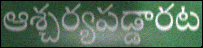
ఆశ్చర్యపడ్డారట